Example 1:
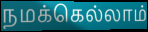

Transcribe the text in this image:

நமக்கெல்லாம்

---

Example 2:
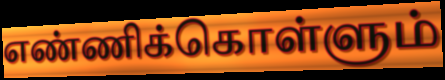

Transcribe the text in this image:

எண்ணிக்கொள்ளும்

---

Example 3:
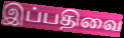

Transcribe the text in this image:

இப்பதிவை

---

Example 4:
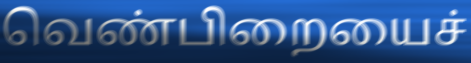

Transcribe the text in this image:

வெண்பிறையைச்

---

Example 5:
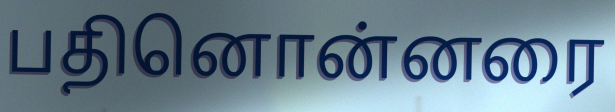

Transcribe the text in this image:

பதினொன்னரை